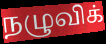
நழுவிக்